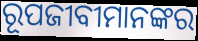
ରୂପଜୀବୀମାନଙ୍କର